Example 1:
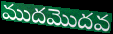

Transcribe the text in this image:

ముదమొదవ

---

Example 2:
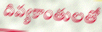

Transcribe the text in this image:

దివ్యకాంతులతో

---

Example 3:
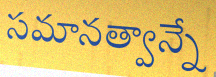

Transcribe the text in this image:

సమానత్వాన్నే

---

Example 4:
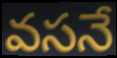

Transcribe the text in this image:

వసనే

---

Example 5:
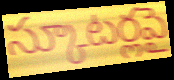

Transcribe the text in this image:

స్కూటర్లపై